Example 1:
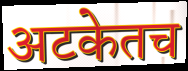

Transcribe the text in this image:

अटकेतच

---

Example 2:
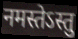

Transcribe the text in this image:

नमस्तेऽस्तु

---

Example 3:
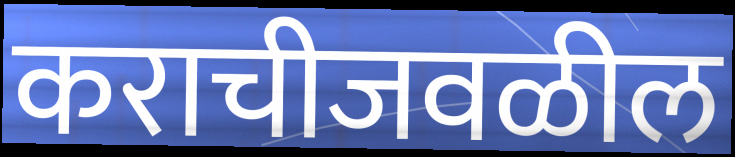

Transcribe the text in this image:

कराचीजवळील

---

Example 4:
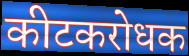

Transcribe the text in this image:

कीटकरोधक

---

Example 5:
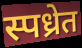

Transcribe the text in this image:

स्पध्रेत